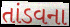
તાંડવના